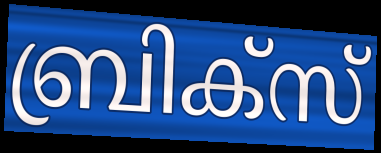
ബ്രിക്സ്